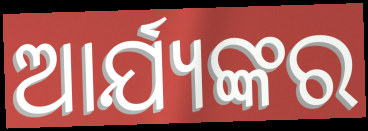
ଆର୍ଯ୍ୟଙ୍କର